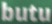
butu